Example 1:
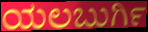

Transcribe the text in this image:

ಯಲಬುರ್ಗಿ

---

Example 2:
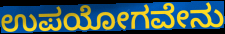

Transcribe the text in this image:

ಉಪಯೋಗವೇನು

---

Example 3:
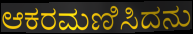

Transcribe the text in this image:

ಆಕರಮಣಿಸಿದನು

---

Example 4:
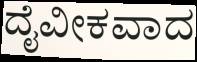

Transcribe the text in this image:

ದೈವೀಕವಾದ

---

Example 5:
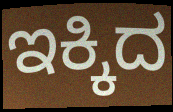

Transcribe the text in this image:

ಇಕ್ಕಿದ